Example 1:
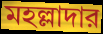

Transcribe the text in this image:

মহল্লাদার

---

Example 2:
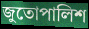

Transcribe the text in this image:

জুতোপালিশ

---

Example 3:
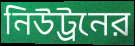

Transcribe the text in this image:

নিউট্রনের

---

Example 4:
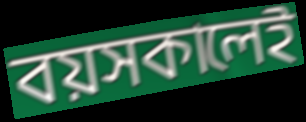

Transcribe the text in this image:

বয়সকালেই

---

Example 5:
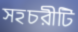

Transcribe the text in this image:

সহচরীটি